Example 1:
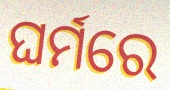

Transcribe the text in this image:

ଘର୍ମରେ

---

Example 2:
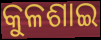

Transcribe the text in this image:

କୁଳଶାଇ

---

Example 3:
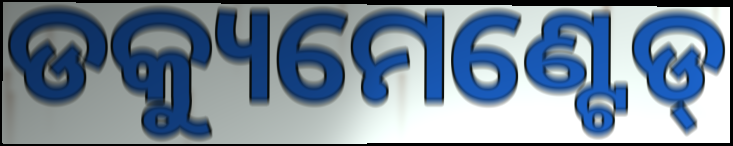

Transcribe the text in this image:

ଡକ୍ୟୁମେଣ୍ଟେଡ୍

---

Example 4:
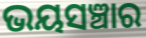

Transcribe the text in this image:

ଭୟସଞ୍ଚାର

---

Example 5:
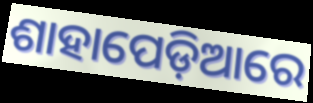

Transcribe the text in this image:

ଶାହାପେଡ଼ିଆରେ